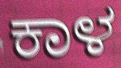
ಕಾಳ